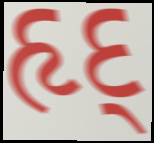
હૃદ્